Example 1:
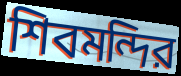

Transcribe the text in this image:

শিবমন্দির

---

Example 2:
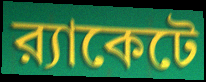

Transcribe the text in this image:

র‍্যাকেটে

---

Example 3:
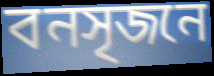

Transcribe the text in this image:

বনসৃজনে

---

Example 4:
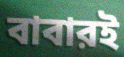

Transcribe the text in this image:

বাবারই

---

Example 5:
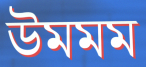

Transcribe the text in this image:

উমমম